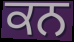
ਕਨ